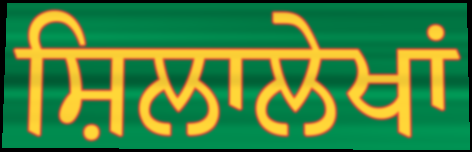
ਸ਼ਿਲਾਲੇਖਾਂ